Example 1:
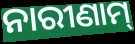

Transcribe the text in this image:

ନାରୀଣାମ୍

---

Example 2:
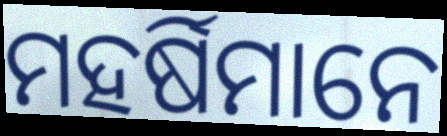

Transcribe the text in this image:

ମହର୍ଷିମାନେ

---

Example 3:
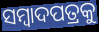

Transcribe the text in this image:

ସମ୍ବାଦପତ୍ରକୁ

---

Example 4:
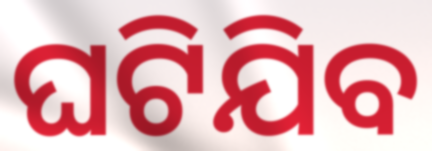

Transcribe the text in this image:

ଘଟିଯିବ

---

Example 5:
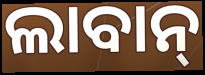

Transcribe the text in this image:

ଲାବାନ୍